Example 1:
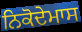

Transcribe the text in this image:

ਨਿਕੋਦੇਮਾਸ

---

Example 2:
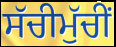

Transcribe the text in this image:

ਸੱਚੀਮੁੱਚੀਂ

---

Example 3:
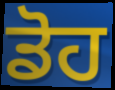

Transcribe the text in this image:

ਡੋਹ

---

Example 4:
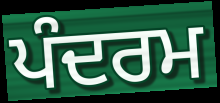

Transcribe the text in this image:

ਪੰਦਰਮ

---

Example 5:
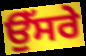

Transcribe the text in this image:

ਉੱਸਰੇ